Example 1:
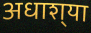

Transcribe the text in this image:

अधाश्या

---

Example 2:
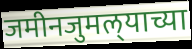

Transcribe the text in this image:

जमीनजुमल्याच्या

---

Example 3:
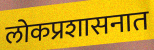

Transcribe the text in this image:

लोकप्रशासनात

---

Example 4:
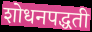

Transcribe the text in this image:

शोधनपद्धती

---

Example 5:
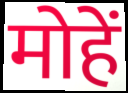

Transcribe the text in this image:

मोहें